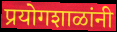
प्रयोगशाळांनी